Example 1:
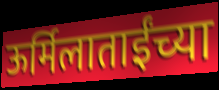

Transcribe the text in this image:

ऊर्मिलाताईंच्या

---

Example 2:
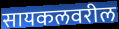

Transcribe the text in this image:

सायकलवरील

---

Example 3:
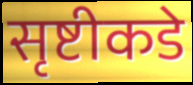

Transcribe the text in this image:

सृष्टीकडे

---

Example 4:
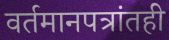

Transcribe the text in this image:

वर्तमानपत्रांतही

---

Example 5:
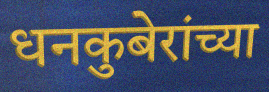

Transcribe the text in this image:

धनकुबेरांच्या